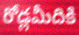
రోడ్లమీదికి